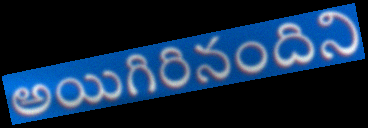
అయిగిరినందిని